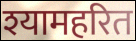
श्यामहरित